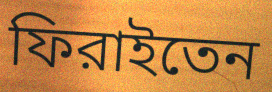
ফিরাইতেন